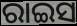
ରାଇସ